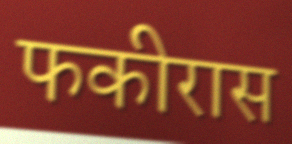
फकीरास